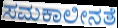
ಸಮಕಾಲೀನತೆ